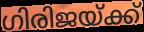
ഗിരിജയ്ക്ക്